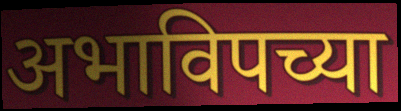
अभाविपच्या